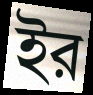
ইর